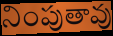
నింపుతావు